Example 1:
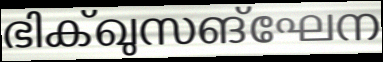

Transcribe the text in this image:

ഭിക്ഖുസങ്ഘേന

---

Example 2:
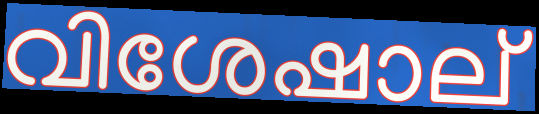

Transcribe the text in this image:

വിശേഷാല്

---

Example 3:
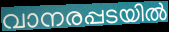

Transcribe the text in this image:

വാനരപ്പടയിൽ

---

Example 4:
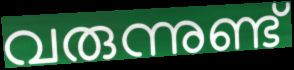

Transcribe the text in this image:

വരുന്നുണ്ട്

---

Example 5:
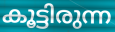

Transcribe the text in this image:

കൂട്ടിരുന്ന